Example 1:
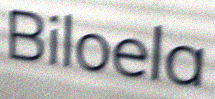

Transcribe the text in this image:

Biloela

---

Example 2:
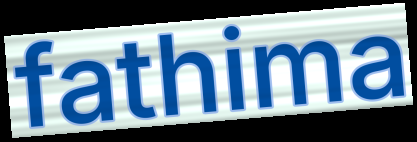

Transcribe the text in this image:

fathima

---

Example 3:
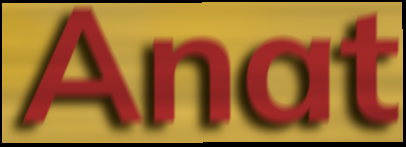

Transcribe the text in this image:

Anat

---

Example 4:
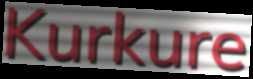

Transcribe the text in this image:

Kurkure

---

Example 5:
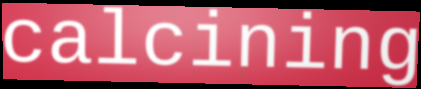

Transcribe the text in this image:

calcining